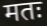
मतः